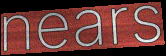
nears